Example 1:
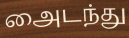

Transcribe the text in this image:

அைடந்து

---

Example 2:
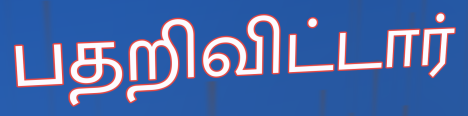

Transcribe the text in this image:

பதறிவிட்டார்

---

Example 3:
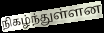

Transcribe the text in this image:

நிகழ்ந்துள்ளன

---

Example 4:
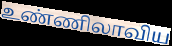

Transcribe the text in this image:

உண்ணிலாவிய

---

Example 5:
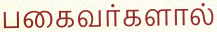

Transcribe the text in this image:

பகைவர்களால்